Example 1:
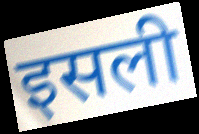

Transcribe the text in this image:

इसली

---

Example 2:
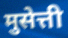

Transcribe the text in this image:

मुसेत्ती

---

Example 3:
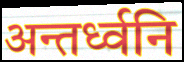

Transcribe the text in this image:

अन्तर्ध्वनि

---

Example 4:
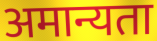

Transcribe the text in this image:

अमान्यता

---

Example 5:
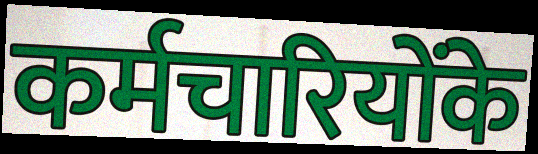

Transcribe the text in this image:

कर्मचारियोंके